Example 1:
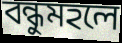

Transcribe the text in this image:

বন্ধুমহলে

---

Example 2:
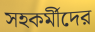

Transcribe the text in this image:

সহকর্মীদের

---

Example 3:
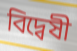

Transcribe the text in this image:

বিদ্বেষী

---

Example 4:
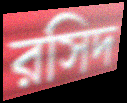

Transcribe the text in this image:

রসিদ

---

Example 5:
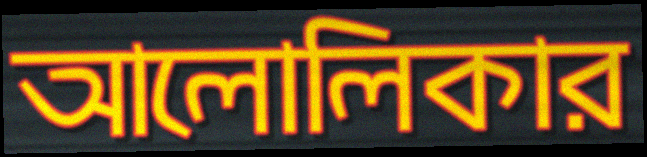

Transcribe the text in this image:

আলোলিকার